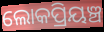
ଲୋକପ୍ରିୟଞ୍ଚ